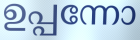
ഉപ്പന്നോ